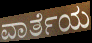
ವಾರ್ತೆಯ